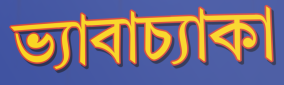
ভ্যাবাচ্যাকা